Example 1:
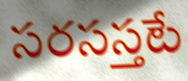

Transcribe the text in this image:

సరసస్తటే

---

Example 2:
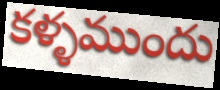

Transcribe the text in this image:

కళ్ళముందు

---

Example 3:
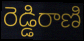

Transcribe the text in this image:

రెడ్డిరాణి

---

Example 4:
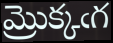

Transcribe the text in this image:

మ్రొక్కఁగ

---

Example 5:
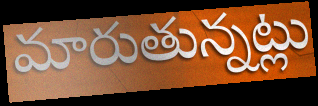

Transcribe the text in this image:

మారుతున్నట్లు